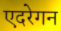
एदरेगन